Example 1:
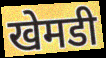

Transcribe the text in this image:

खेमडी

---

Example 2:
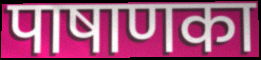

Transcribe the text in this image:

पाषाणका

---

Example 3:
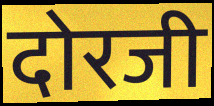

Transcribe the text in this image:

दोरजी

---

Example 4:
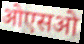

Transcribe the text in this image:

ओएसओ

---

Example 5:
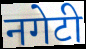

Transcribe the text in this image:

नगेटी